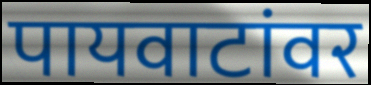
पायवाटांवर